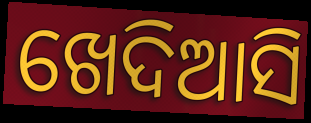
ଖେଦିଆସି